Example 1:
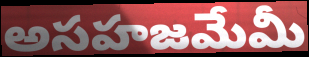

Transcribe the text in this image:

అసహజమేమీ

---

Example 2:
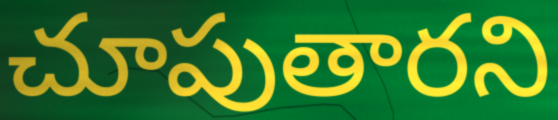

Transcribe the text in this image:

చూపుతారని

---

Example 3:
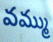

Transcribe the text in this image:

వమ్ము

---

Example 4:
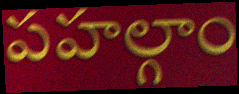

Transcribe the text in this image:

పహల్గాం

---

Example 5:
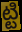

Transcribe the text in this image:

ట్టి